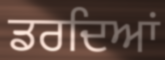
ਡਰਦਿਆਂ